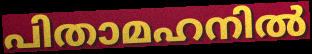
പിതാമഹനിൽ